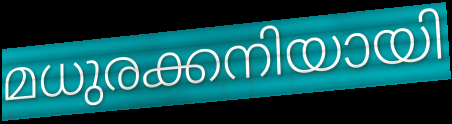
മധുരക്കനിയായി